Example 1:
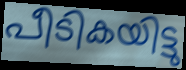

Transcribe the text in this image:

പീടികയിട്ടു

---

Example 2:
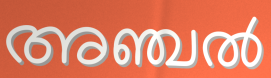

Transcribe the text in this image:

അഞ്ചൽ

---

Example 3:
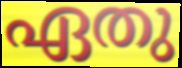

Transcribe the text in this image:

ഏതു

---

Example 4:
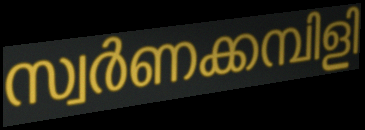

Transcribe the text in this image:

സ്വർണക്കമ്പിളി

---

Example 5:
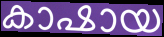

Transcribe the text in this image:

കാഷായ